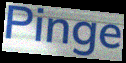
Pinge